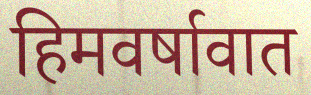
हिमवर्षावात